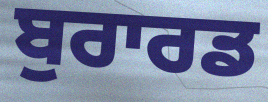
ਬੁਰਾਰਡ